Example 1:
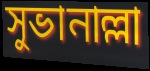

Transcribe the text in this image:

সুভানাল্লা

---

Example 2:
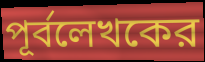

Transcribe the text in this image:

পূর্বলেখকের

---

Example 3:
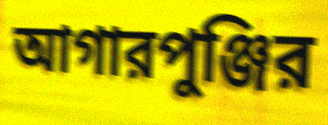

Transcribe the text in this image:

আগারপুঞ্জির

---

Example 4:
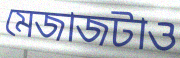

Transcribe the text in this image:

মেজাজটাও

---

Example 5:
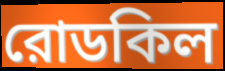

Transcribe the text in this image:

রোডকিল